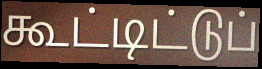
கூட்டிட்டுப்